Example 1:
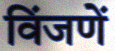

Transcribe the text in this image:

विंजणें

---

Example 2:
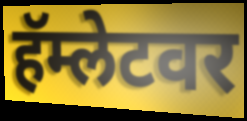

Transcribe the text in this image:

हॅम्लेटवर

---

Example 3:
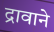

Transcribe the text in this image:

द्रावाने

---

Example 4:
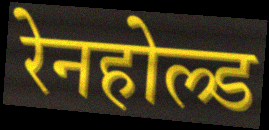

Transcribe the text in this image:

रेनहोल्ड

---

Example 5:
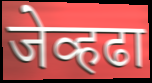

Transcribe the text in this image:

जेव्हढा